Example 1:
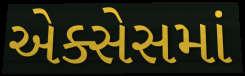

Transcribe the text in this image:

એક્સેસમાં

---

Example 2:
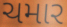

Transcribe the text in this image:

ચમાર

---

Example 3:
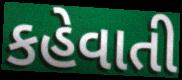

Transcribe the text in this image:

કહેવાતી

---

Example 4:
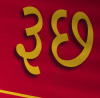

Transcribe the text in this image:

રૂછ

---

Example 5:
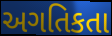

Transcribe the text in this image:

અગતિકતા